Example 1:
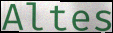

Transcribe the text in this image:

Altes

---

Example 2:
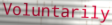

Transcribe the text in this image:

Voluntarily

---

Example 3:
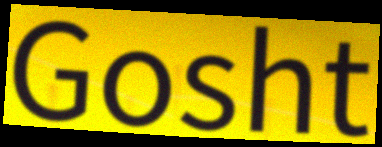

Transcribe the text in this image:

Gosht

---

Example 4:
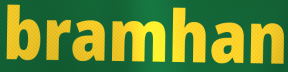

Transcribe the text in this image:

bramhan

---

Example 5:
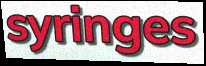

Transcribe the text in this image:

syringes